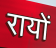
रायों